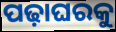
ପଢ଼ାଘରକୁ